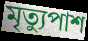
মৃত্যুপাশ